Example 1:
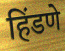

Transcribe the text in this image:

हिंडणे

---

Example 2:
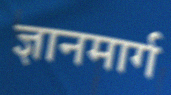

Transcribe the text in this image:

ज्ञानमार्ग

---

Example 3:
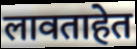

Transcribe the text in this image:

लावताहेत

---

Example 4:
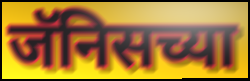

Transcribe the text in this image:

जॅनिसच्या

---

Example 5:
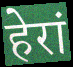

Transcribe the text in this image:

हेरां